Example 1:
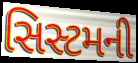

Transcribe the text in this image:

સિસ્ટમની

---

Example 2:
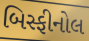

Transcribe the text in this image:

બિસ્ફીનોલ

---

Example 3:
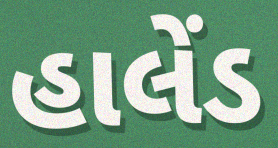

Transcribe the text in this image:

હાલેંડ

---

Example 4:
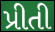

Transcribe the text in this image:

પ્રીતી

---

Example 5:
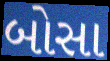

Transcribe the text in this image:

બોસા